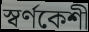
স্বর্ণকেশী